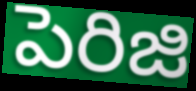
పెరిజి